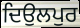
ਦਿਉਲਪੁਰ